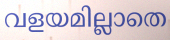
വളയമില്ലാതെ